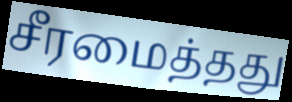
சீரமைத்தது